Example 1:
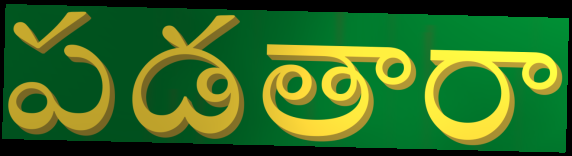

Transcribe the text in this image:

పడతారా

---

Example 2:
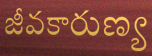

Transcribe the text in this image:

జీవకారుణ్య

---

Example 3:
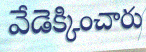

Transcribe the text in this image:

వేడెక్కించారు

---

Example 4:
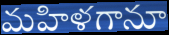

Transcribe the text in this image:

మహిళగానూ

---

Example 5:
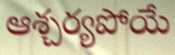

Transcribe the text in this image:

ఆశ్చర్యపోయే